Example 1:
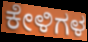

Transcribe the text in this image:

ಕೇಳಿಗಳ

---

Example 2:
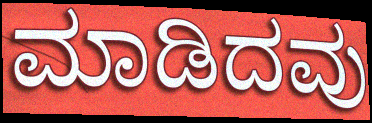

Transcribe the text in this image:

ಮಾಡಿದವು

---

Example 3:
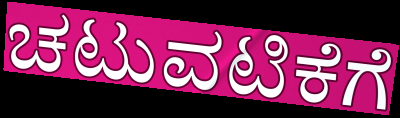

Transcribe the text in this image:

ಚಟುವಟಿಕೆಗೆ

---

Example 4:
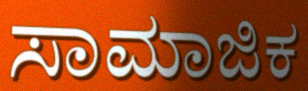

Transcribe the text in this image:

ಸಾಮಾಜಿಕ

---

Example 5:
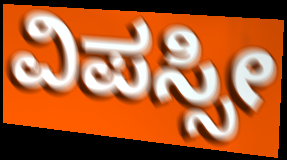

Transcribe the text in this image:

ವಿಪಸ್ಸೀ